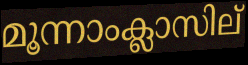
മൂന്നാംക്ലാസില്